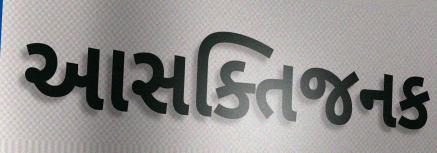
આસક્તિજનક